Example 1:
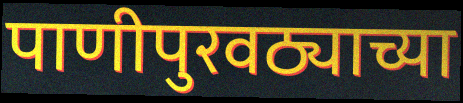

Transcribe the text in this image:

पाणीपुरवठ्याच्या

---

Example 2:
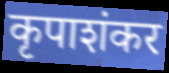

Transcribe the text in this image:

कृपाशंकर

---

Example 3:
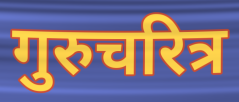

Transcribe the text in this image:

गुरुचरित्र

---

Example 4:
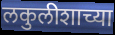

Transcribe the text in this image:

लकुलीशाच्या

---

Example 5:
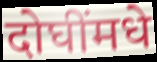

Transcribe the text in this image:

दोघींमधे